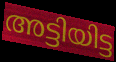
അട്ടിയിട്ട